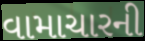
વામાચારની